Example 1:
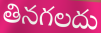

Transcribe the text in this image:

తినగలదు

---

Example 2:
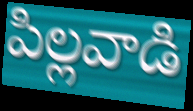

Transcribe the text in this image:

పిల్లవాడి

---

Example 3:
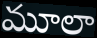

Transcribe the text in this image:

మూలా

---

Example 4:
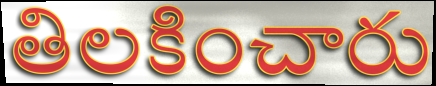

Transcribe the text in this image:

తిలకించారు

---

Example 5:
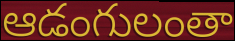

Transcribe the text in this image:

ఆడంగులంతా